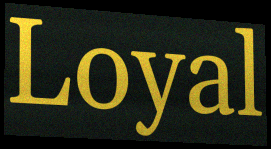
Loyal